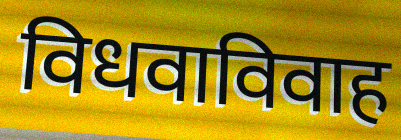
विधवाविवाह